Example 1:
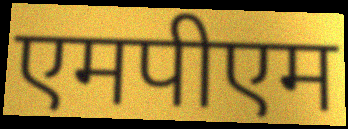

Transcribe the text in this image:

एमपीएम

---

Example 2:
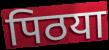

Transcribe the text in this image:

पिठया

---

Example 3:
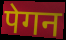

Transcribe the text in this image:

पेगन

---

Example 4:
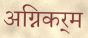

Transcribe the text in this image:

अग्निकर्म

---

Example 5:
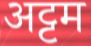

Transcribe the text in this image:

अट्टम